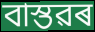
বাস্তৱৰ